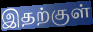
இதற்குள்